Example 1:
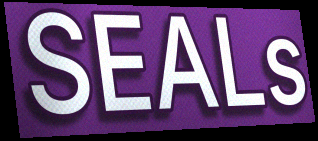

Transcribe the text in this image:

SEALs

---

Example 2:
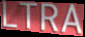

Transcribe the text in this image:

LTRA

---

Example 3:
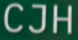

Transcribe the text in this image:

CJH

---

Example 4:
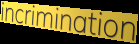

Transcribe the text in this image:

incrimination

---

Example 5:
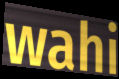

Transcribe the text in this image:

wahi